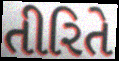
તીરિતે